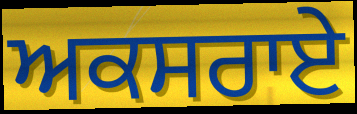
ਅਕਸਰਾਏ